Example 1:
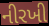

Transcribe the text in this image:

નીરખી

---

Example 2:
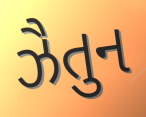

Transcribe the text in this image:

ઝૈતુન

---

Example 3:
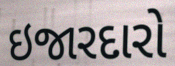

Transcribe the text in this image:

ઇજારદારો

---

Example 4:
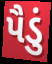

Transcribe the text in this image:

પૈડું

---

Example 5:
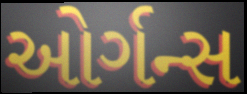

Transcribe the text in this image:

ઓર્ગન્સ